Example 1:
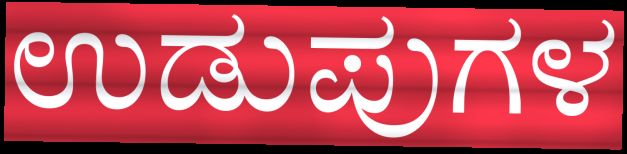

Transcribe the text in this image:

ಉಡುಪುಗಳ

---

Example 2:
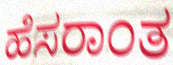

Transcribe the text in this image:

ಹೆಸರಾಂತ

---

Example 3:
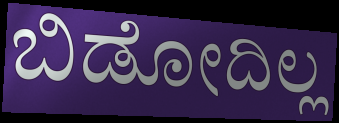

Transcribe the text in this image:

ಬಿಡೋದಿಲ್ಲ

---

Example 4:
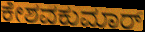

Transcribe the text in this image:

ಕೇಶವಕುಮಾರ್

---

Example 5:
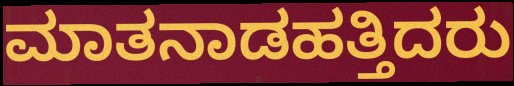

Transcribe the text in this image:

ಮಾತನಾಡಹತ್ತಿದರು